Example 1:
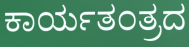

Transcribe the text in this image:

ಕಾರ್ಯತಂತ್ರದ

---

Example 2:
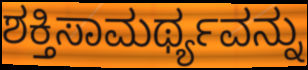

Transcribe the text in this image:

ಶಕ್ತಿಸಾಮರ್ಥ್ಯವನ್ನು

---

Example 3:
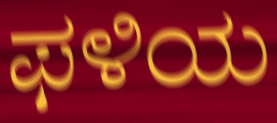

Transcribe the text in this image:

ಫಳಿಯ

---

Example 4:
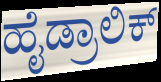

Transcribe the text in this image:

ಹೈಡ್ರಾಲಿಕ್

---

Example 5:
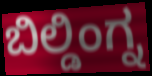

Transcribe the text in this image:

ಬಿಲ್ಡಿಂಗ್ನ